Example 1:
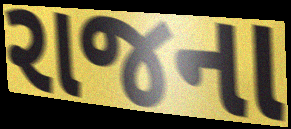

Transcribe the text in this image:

રાજના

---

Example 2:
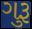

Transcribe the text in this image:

ગુરૂ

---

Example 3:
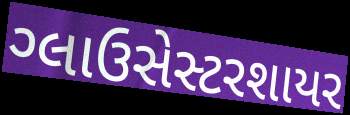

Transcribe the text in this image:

ગ્લાઉસેસ્ટરશાયર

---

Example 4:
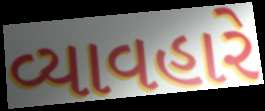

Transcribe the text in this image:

વ્યાવહારે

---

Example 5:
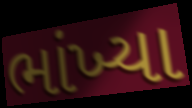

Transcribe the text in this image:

ભાંખ્યા